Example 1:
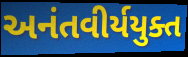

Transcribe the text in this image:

અનંતવીર્યયુક્ત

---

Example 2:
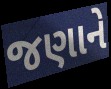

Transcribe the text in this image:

જણાને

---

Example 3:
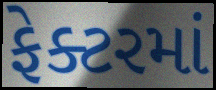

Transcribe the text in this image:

ફેક્ટરમાં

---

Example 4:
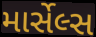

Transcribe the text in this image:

માર્સેલ્સ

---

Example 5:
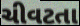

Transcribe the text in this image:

ચીવટતા